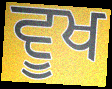
ਵੂਖ